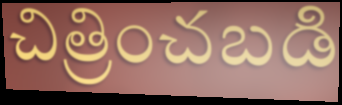
చిత్రించబడి